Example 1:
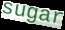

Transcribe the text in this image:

sugar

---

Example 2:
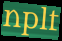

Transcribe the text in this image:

nplt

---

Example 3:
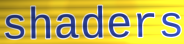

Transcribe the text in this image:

shaders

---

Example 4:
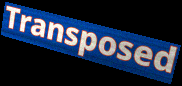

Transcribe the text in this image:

Transposed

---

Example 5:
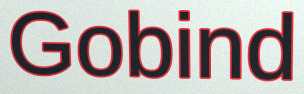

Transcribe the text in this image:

Gobind